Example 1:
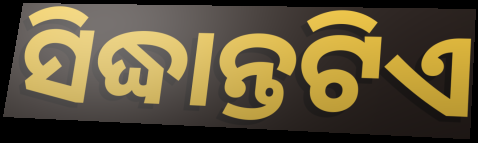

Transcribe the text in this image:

ସିଦ୍ଧାନ୍ତଟିଏ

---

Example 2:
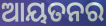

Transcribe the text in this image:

ଆୟତନର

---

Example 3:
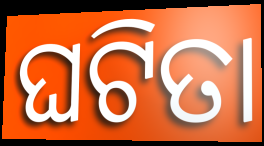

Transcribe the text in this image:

ଘଟିତା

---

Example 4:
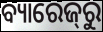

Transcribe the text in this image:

ବ୍ୟାରେଜ୍‌ରୁ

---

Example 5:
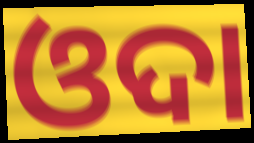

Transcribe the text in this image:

ଓଦା